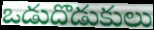
ఒడుదొడుకులు